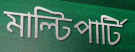
মাল্টিপার্টি